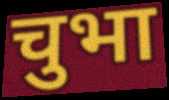
चुभा